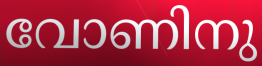
വോണിനു